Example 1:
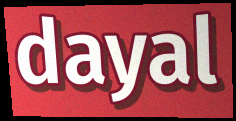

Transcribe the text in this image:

dayal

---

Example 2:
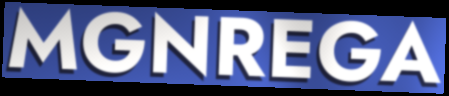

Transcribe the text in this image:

MGNREGA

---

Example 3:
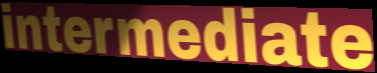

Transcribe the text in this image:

intermediate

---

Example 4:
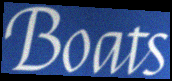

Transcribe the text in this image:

Boats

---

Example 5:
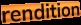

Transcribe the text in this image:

rendition